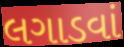
લગાડવાં